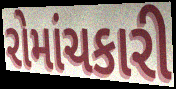
રોમાંચકારી